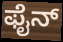
ಫೈನ್